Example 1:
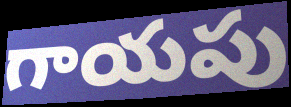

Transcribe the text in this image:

గాయపు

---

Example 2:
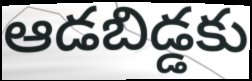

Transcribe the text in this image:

ఆడబిడ్డకు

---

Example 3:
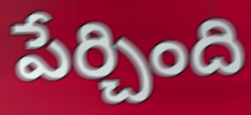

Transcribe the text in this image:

పేర్చింది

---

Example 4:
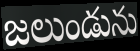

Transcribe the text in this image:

జలుండును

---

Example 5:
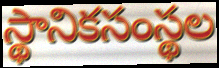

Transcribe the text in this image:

స్థానికసంస్థల